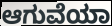
ಆಗುವೆಯಾ